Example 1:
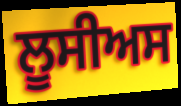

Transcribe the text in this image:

ਲੂਸੀਅਸ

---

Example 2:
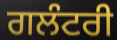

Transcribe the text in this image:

ਗਲੰਟਰੀ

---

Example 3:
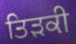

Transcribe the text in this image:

ਤਿੜਕੀ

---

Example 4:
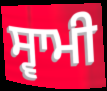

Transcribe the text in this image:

ਸ੍ਵਾਮੀ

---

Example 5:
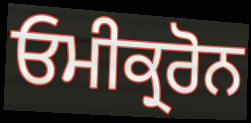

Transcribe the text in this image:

ਓਮੀਕ੍ਰਰੋਨ